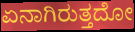
ಏನಾಗಿರುತ್ತದೋ